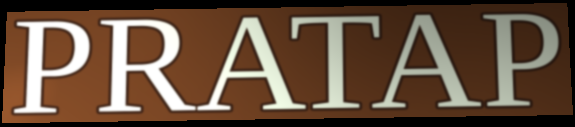
PRATAP